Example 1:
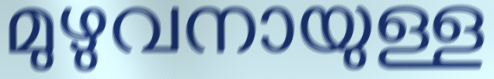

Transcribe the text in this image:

മുഴുവനായുള്ള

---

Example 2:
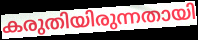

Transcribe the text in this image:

കരുതിയിരുന്നതായി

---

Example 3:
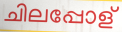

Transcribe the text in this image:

ചിലപ്പോള്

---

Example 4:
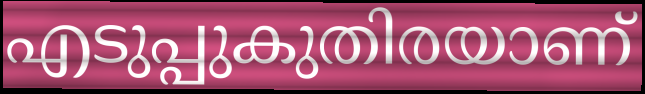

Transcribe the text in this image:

എടുപ്പുകുതിരയാണ്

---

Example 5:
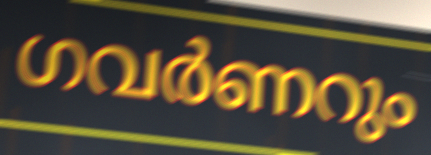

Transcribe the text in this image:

ഗവർണറും